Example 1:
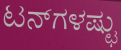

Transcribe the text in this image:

ಟನ್‌ಗಳಷ್ಟು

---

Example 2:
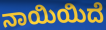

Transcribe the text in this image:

ನಾಯಿಯಿದೆ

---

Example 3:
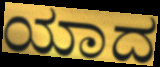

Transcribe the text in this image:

ಯಾದ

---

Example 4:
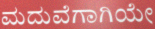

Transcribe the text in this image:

ಮದುವೆಗಾಗಿಯೇ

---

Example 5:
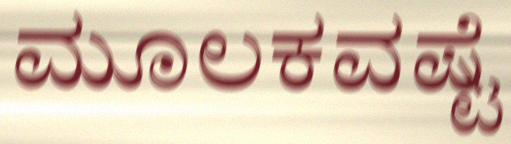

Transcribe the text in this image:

ಮೂಲಕವಷ್ಟೆ